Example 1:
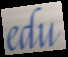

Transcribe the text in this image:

edu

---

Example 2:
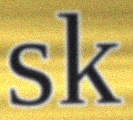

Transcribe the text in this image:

sk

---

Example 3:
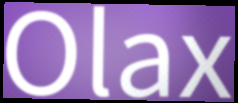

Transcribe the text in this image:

Olax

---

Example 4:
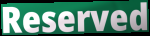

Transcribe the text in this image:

Reserved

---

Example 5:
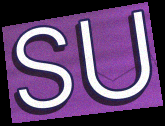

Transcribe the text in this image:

SU